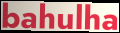
bahulha